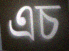
এচ